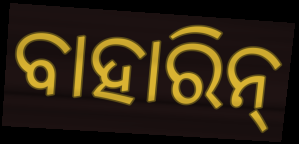
ବାହାରିନ୍